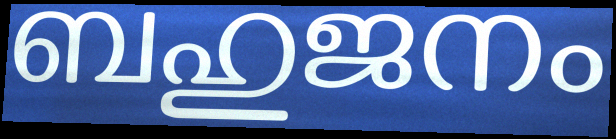
ബഹുജനം